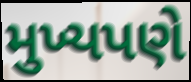
મુખ્યપણે